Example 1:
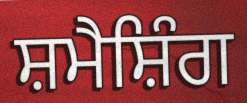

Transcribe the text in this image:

ਸ਼ਮੈਸ਼ਿੰਗ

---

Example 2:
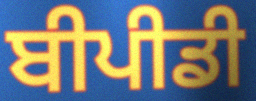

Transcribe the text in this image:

ਬੀਪੀਡੀ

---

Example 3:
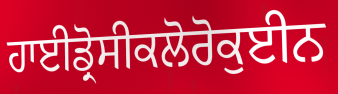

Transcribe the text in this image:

ਹਾਈਡ੍ਰੋਸੀਕਲੋਰੋਕੁਈਨ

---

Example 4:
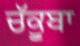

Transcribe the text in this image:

ਚੱਕੂਬਾ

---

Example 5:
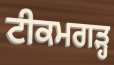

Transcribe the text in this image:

ਟੀਕਮਗੜ੍ਹ